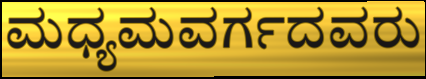
ಮಧ್ಯಮವರ್ಗದವರು